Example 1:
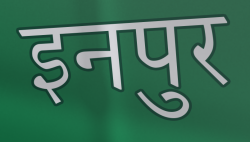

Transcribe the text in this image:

इनपुर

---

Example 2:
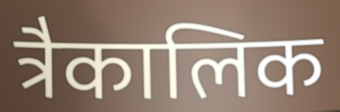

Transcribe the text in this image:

त्रैकालिक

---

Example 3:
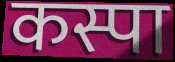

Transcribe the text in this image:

कस्पा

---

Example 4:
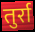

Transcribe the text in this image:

तुर्रा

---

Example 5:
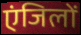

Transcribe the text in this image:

एंजिलों